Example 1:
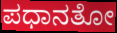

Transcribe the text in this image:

ಪಧಾನತೋ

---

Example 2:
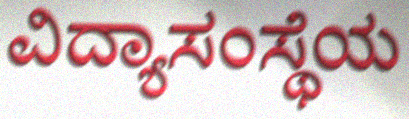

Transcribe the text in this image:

ವಿದ್ಯಾಸಂಸ್ಥೆಯ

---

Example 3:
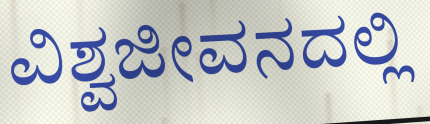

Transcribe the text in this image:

ವಿಶ್ವಜೀವನದಲ್ಲಿ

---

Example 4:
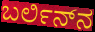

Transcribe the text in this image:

ಬರ್ಲಿನ್‍ನ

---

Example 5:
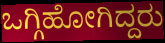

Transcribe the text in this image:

ಒಗ್ಗಿಹೋಗಿದ್ದರು